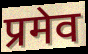
प्रमेव